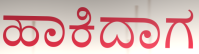
ಹಾಕಿದಾಗ